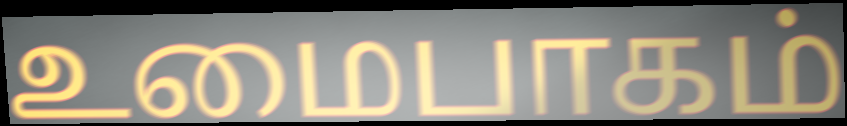
உமைபாகம்